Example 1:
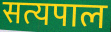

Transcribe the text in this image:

सत्यपाल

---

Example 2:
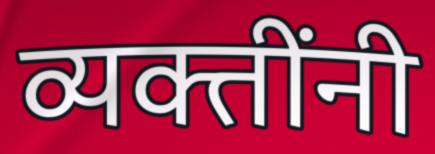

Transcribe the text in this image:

व्यक्तींनी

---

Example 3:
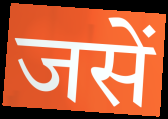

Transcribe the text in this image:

जसें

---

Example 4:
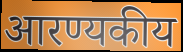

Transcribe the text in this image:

आरण्यकीय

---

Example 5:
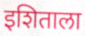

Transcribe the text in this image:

इशिताला